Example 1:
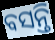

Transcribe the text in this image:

ବସନ୍ତି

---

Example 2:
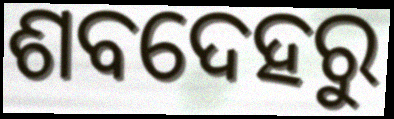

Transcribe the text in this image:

ଶବଦେହରୁ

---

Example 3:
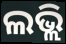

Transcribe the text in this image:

ଲଭ୍ଲି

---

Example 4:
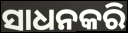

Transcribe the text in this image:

ସାଧନକରି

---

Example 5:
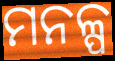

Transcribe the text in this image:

ମନଳ୍ପ